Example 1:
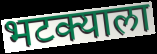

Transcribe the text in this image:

भटक्याला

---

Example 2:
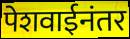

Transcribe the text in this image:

पेशवाईनंतर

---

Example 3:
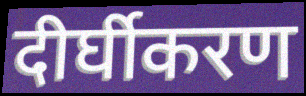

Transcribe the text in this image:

दीर्घीकरण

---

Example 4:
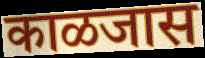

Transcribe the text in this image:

काळजास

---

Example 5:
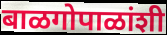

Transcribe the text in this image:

बाळगोपाळांशी